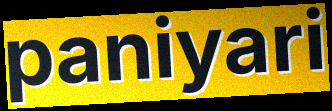
paniyari